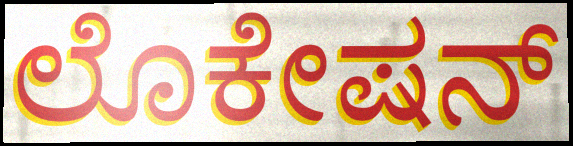
ಲೊಕೇಷನ್